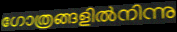
ഗോത്രങ്ങളിൽനിന്നു